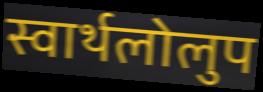
स्वार्थलोलुप